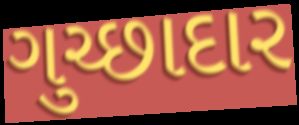
ગુચ્છાદાર